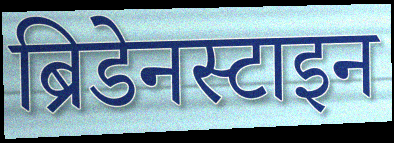
ब्रिडेनस्टाइन